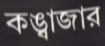
কঙ্বাজার